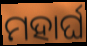
ମହାର୍ଘ